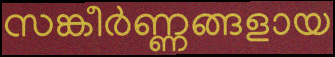
സങ്കീർണ്ണങ്ങളായ